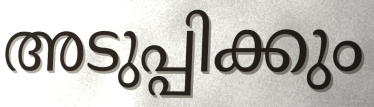
അടുപ്പിക്കും